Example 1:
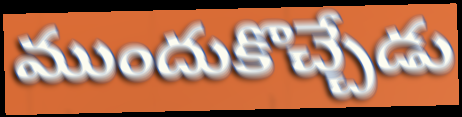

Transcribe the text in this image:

ముందుకొచ్చేడు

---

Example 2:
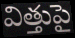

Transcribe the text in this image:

విత్తుపై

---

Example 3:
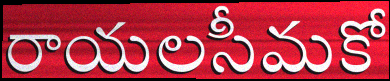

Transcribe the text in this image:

రాయలసీమకో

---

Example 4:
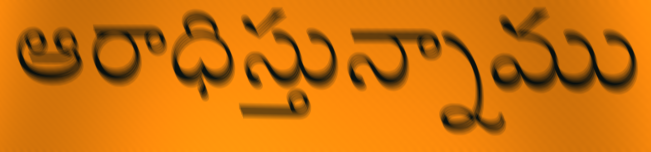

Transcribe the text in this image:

ఆరాధిస్తున్నాము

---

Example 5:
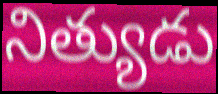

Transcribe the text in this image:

నిత్యుడు